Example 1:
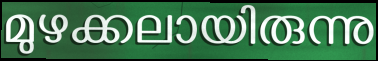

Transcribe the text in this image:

മുഴക്കലായിരുന്നു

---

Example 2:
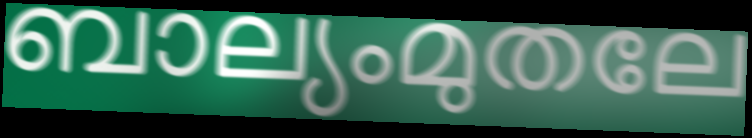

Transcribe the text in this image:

ബാല്യംമുതലേ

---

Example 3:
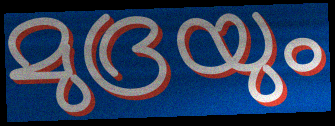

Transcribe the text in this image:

മുദ്രയും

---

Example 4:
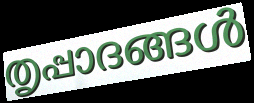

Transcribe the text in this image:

തൃപ്പാദങ്ങൾ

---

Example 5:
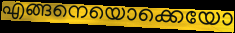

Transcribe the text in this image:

എങ്ങനെയൊക്കെയോ